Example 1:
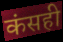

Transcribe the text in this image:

कंसही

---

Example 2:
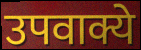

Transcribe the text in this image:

उपवाक्ये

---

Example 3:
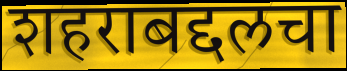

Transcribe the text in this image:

शहराबद्दलचा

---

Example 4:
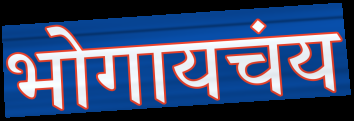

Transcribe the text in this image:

भोगायचंय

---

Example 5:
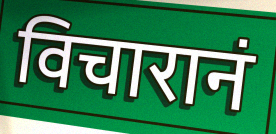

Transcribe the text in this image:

विचारानं